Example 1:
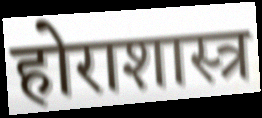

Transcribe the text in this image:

होराशास्त्र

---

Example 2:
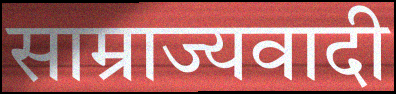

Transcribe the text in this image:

साम्राज्यवादी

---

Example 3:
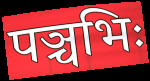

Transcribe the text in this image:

पञ्चभिः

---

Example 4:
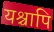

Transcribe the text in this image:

यश्चापि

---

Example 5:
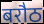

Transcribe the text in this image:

बरौठ